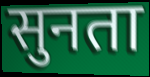
सुनता